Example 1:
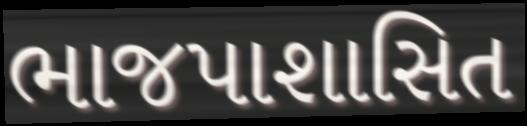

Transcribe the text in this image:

ભાજપાશાસિત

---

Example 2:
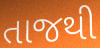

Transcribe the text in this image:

તાજથી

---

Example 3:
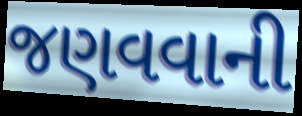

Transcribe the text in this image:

જણવવાની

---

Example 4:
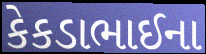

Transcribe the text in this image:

કેકડાભાઈના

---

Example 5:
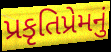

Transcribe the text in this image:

પ્રકૃતિપ્રેમનું